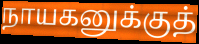
நாயகனுக்குத்